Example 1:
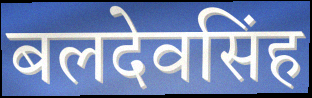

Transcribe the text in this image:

बलदेवसिंह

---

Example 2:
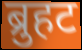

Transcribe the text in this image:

ब्रुहट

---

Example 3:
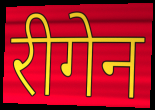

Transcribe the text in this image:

रीगेन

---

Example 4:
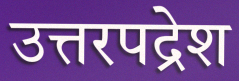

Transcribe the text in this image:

उत्तरपद्रेश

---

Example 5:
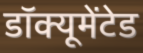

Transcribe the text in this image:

डॉक्यूमेंटेड